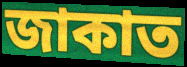
জাকাত